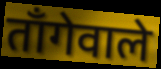
ताँगेवाले